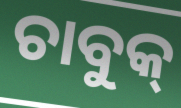
ଚାବୁକ୍